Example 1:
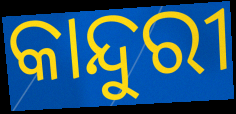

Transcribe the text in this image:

କାନ୍ଦୁରୀ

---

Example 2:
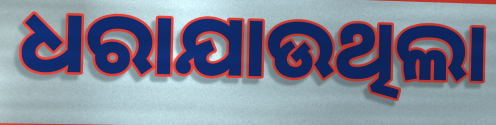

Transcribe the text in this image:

ଧରାଯାଉଥିଲା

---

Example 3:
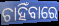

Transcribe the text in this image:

ଚାହିଁବାରେ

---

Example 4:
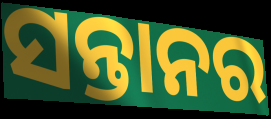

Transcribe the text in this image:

ସନ୍ତାନର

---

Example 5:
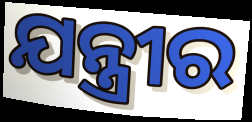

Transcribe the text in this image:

ଯନ୍ତ୍ରୀର